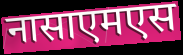
नासाएमएस